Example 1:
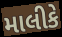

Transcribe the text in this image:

માલીકે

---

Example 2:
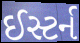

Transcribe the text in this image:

ઈસ્ટર્ન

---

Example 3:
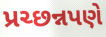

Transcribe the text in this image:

પ્રચ્છન્નપણે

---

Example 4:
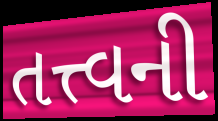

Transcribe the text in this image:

તત્ત્વની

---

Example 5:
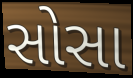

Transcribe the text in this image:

સોસા